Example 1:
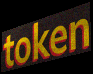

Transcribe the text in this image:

token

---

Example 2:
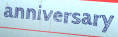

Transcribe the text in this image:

anniversary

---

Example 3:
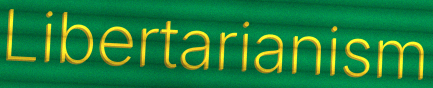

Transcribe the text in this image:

Libertarianism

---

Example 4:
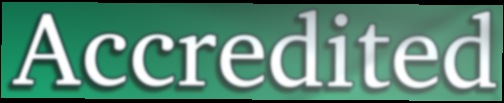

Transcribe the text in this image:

Accredited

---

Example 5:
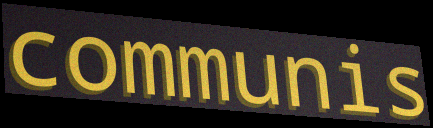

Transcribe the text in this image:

communis